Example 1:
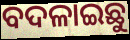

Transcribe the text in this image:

ବଦଳାଇଛୁ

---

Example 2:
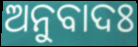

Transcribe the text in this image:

ଅନୁବାଦଃ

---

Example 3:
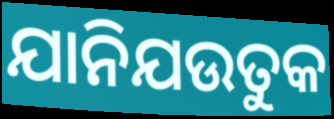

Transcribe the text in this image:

ଯାନିଯଉତୁକ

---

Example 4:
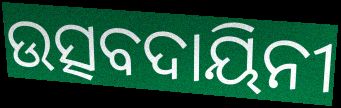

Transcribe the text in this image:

ଉତ୍ସବଦାୟିନୀ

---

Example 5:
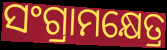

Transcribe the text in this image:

ସଂଗ୍ରାମକ୍ଷେତ୍ର